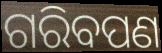
ଗରିବପଣ